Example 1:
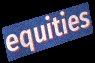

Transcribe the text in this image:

equities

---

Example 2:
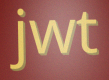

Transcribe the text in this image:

jwt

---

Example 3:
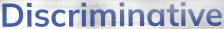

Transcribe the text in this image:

Discriminative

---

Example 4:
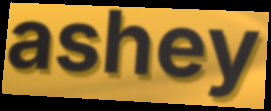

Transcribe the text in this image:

ashey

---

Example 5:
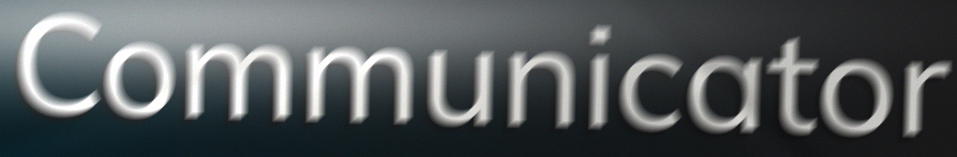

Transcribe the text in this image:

Communicator